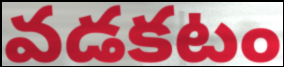
వడకటం